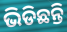
ଭିଡିଛନ୍ତି